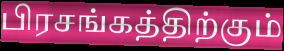
பிரசங்கத்திற்கும்